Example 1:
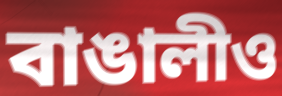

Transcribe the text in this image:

বাঙালীও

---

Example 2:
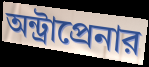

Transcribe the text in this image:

অন্ট্রাপ্রেনার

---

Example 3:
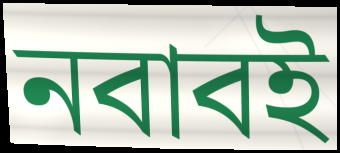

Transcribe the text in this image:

নবাবই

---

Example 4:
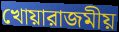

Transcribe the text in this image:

খোয়ারাজমীয়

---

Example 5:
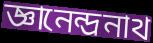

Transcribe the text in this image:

জ্ঞানেন্দ্রনাথ